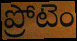
ప్రోటెం